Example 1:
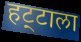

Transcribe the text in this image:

हट्‌टाला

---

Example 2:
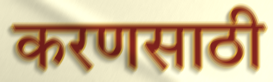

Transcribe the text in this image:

करणसाठी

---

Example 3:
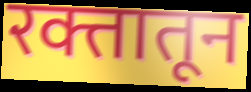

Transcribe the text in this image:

रक्तातून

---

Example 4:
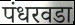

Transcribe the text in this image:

पंधरवडा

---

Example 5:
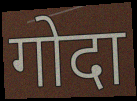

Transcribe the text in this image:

गोदा